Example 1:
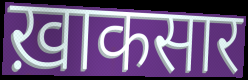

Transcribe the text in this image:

ख़ाकसार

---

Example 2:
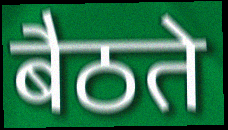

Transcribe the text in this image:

बैठते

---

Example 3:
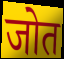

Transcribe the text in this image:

जोत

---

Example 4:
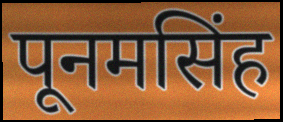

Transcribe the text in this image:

पूनमसिंह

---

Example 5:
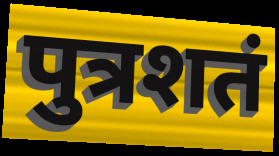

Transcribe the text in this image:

पुत्रशतं